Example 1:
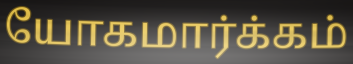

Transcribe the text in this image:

யோகமார்க்கம்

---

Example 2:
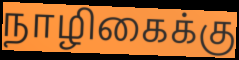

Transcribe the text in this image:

நாழிகைக்கு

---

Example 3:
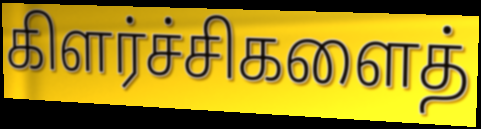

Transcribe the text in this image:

கிளர்ச்சிகளைத்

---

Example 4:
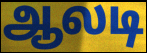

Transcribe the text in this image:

ஆலடி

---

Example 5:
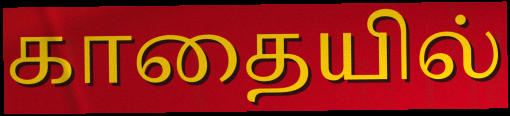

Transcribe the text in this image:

காதையில்